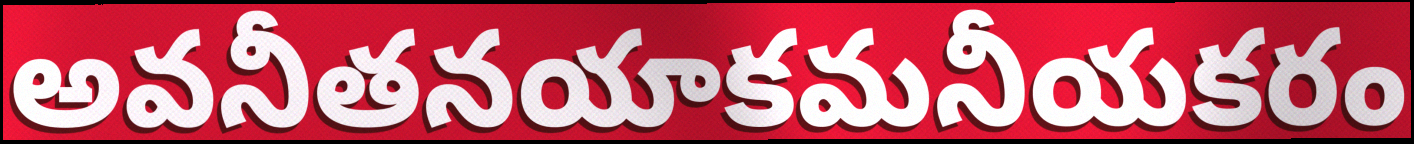
అవనీతనయాకమనీయకరం